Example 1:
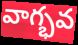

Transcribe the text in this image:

వాగ్భవ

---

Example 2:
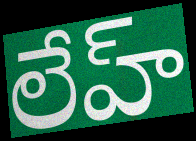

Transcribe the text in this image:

లేహ్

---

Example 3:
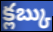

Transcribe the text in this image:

క్లబ్కు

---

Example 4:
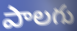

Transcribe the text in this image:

పాలగు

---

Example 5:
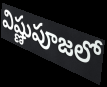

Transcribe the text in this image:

విష్ణుపూజలో